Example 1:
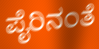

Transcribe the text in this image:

ಪೈರಿನಂತೆ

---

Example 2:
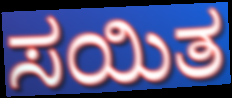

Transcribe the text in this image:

ಸಯಿತ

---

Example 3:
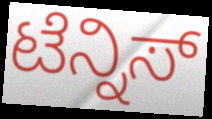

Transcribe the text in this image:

ಟೆನ್ನಿಸ್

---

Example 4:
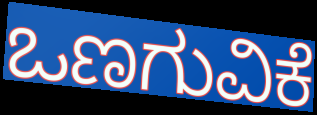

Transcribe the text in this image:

ಒಣಗುವಿಕೆ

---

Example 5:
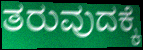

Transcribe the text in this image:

ತರುವುದಕ್ಕೆ